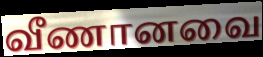
வீணானவை